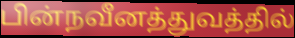
பின்நவீனத்துவத்தில்